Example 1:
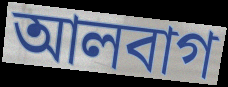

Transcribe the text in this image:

আলবাগ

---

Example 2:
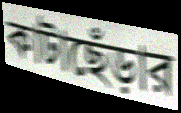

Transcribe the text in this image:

কাটাছেঁড়ার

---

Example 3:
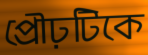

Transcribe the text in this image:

প্রৌঢ়টিকে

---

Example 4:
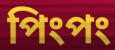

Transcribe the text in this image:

পিংপং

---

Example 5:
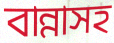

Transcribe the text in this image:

বান্নাসহ